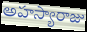
అహస్యారాజు